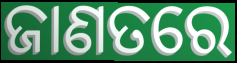
ଜାଣତରେ